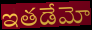
ఇతడేమో